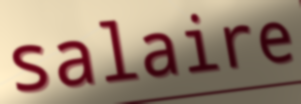
salaire